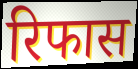
रिफास